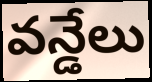
వన్డేలు